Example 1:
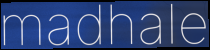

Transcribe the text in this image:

madhale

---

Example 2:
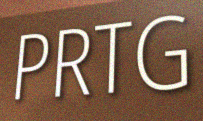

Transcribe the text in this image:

PRTG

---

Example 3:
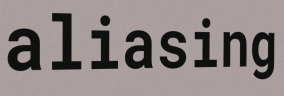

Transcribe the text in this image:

aliasing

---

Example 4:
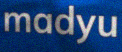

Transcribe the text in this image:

madyu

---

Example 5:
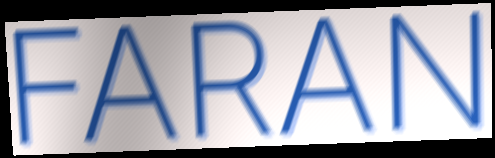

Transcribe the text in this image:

FARAN